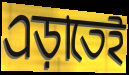
এড়াতেই